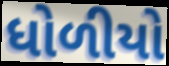
ધોળીયો